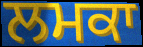
ਲਮਕਾ